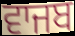
ਵਾਜਬ